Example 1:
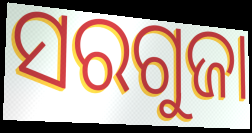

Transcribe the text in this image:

ସରଗୁଜା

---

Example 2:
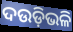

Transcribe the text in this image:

ଦଉଡ଼ିଭଳି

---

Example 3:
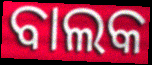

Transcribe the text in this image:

ବାଲକ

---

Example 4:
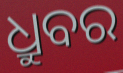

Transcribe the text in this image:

ଧ୍ରୁବର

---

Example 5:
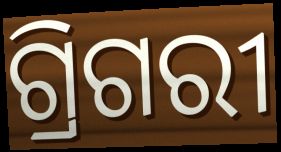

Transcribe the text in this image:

ଗ୍ରିଗରୀ